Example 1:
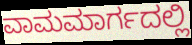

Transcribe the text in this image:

ವಾಮಮಾರ್ಗದಲ್ಲಿ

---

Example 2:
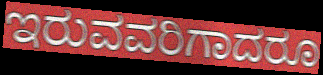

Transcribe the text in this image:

ಇರುವವರಿಗಾದರೂ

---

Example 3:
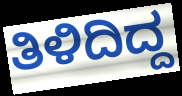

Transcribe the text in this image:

ತಿಳಿದಿದ್ದ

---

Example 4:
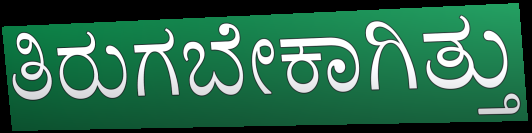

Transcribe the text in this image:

ತಿರುಗಬೇಕಾಗಿತ್ತು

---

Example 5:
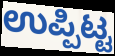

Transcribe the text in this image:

ಉಪ್ಪಿಟ್ಟ